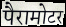
पैरामोटर